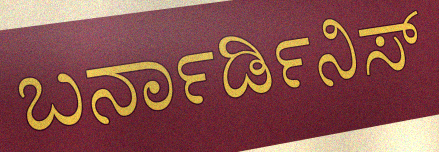
ಬರ್ನಾರ್ಡಿನಿಸ್